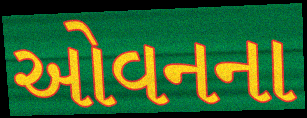
ઓવનના